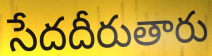
సేదదీరుతారు